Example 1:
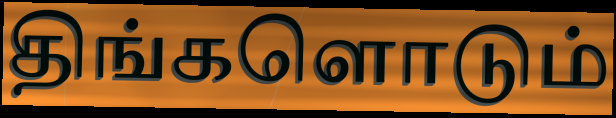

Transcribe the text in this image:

திங்களொடும்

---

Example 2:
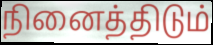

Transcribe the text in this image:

நினைத்திடும்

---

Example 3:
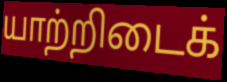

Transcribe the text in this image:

யாற்றிடைக்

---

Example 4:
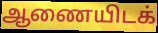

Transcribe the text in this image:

ஆணையிடக்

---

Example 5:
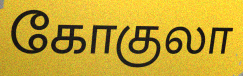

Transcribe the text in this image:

கோகுலா